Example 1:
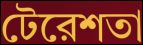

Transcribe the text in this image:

টেরেশতা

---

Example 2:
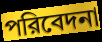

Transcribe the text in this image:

পরিবেদনা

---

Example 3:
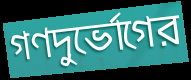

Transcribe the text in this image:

গণদুর্ভোগের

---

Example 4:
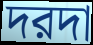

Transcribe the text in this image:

দরদা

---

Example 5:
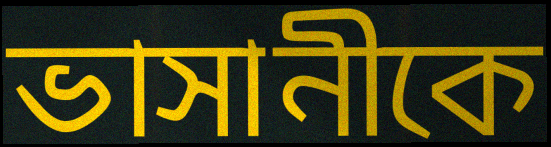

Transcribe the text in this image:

ভাসানীকে